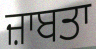
ਜ਼ਾਬਤਾ